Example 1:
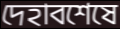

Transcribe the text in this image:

দেহাবশেষে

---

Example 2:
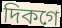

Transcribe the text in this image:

দিকগে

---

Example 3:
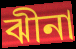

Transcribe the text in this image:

ঝীনা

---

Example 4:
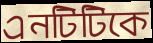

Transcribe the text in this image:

এনটিটিকে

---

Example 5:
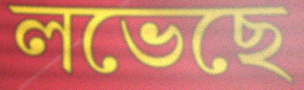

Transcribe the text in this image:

লভেছে